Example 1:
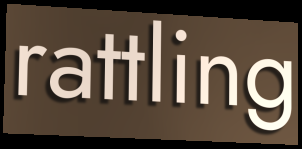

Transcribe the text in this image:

rattling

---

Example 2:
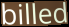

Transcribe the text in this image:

billed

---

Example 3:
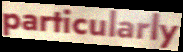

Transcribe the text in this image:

particularly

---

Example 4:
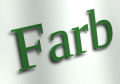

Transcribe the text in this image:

Farb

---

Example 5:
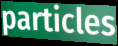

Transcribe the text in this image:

particles